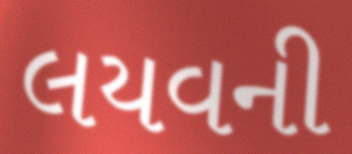
લયવની